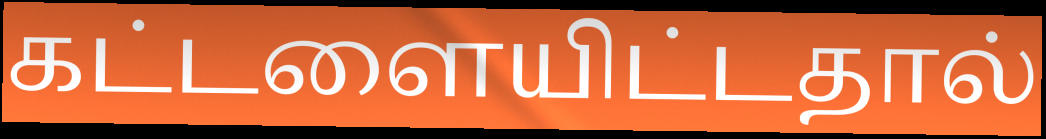
கட்டளையிட்டதால்